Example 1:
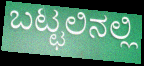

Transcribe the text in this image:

ಬಟ್ಟಲಿನಲ್ಲಿ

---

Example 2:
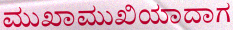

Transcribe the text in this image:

ಮುಖಾಮುಖಿಯಾದಾಗ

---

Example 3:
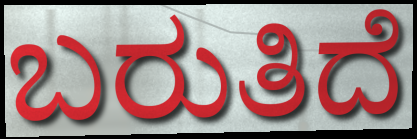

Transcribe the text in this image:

ಬರುತಿದೆ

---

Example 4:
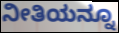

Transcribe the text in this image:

ನೀತಿಯನ್ನೂ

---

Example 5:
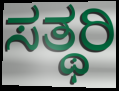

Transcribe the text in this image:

ಸತ್ಥರಿ